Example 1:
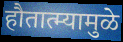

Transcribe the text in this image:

हौतात्म्यामुळे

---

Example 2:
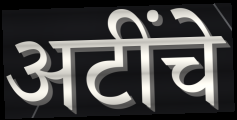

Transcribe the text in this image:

अटींचे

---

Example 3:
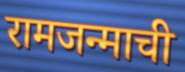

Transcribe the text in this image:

रामजन्माची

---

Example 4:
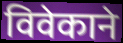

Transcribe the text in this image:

विवेकाने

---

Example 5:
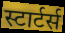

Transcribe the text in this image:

स्टार्टर्स